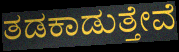
ತಡಕಾಡುತ್ತೇವೆ